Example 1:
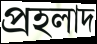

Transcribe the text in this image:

প্রহলাদ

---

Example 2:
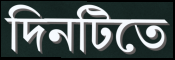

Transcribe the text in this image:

দিনটিতে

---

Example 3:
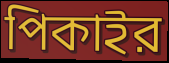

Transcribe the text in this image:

পিকাইর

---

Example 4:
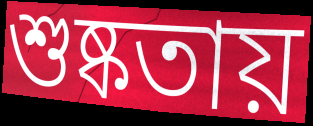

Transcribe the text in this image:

শুষ্কতায়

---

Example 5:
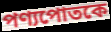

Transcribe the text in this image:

পণ্যপোতকে